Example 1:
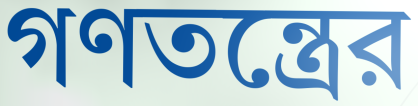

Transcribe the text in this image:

গণতন্ত্রের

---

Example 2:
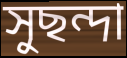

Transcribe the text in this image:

সুছন্দা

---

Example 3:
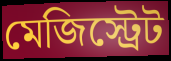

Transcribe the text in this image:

মেজিস্ট্রেট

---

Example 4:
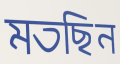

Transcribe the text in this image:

মতছিন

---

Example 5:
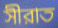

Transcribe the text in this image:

সীরাত